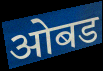
ओबड